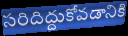
సరిదిద్దుకోవడానికి